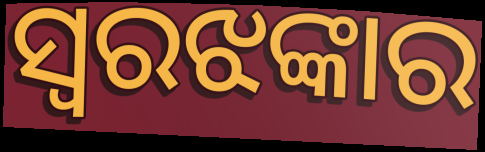
ସ୍ୱରଝଙ୍କାର